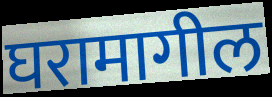
घरामागील